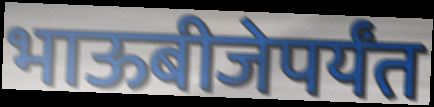
भाऊबीजेपर्यंत